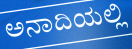
ಅನಾದಿಯಲ್ಲಿ